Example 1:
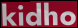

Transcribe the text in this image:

kidho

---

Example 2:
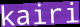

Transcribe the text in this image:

kairi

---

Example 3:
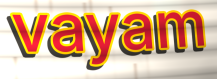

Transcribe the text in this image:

vayam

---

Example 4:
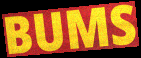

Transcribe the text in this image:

BUMS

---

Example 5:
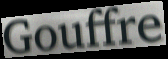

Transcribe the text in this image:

Gouffre